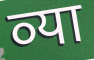
व्‍या